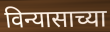
विन्यासाच्या